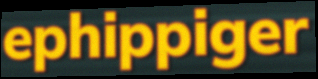
ephippiger